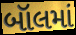
બૉલમાં